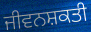
ਜੀਵਨਸ਼ਕਤੀ